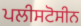
ਪਲੀਸਟੋਸੀਨ